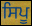
ਸਿਪੂ